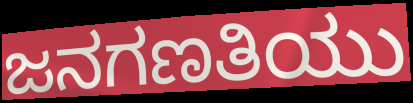
ಜನಗಣತಿಯು